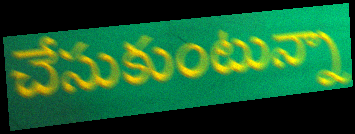
చేసుకుంటున్నా